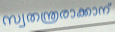
സ്വതന്ത്രരാക്കാന്